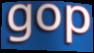
gop